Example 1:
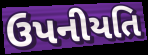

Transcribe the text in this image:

ઉપનીયતિ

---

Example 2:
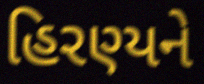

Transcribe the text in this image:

હિરણ્યને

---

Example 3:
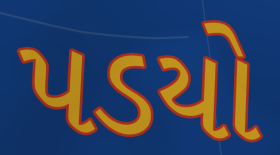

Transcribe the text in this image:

પડયો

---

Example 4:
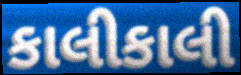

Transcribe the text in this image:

કાલીકાલી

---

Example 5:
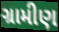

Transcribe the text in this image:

ગ્રામીણ